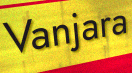
Vanjara